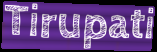
Tirupati